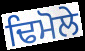
ਢਿਮੋਲੇ